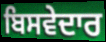
ਬਿਸਵੇਦਾਰ